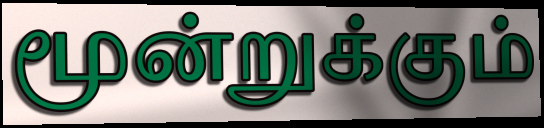
மூன்றுக்கும்